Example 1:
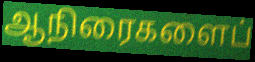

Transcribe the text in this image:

ஆநிரைகளைப்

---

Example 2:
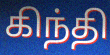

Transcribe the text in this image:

கிந்தி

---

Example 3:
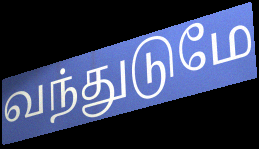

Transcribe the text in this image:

வந்துடுமே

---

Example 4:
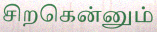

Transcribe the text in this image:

சிறகென்னும்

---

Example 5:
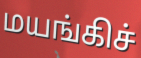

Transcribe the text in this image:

மயங்கிச்